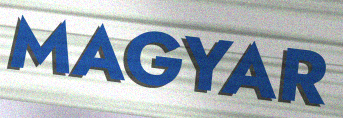
MAGYAR